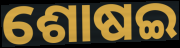
ଶୋଷଇ